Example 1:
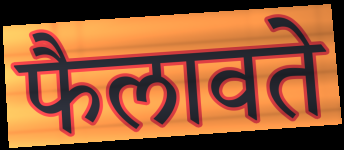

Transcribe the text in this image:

फैलावते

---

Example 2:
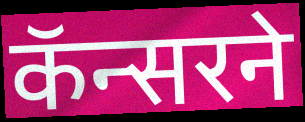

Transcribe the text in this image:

कॅन्सरने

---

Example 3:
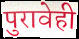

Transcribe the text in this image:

पुरावेही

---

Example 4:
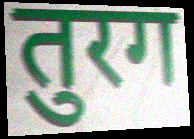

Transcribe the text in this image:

तुरग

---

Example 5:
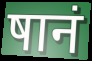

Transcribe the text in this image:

षानं